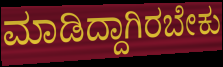
ಮಾಡಿದ್ದಾಗಿರಬೇಕು